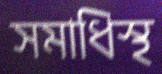
সমাধিস্থ